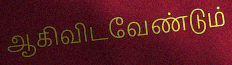
ஆகிவிடவேண்டும்